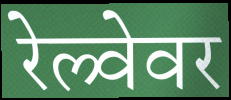
रेल्वेवर